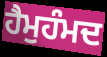
ਹੈਮੁਹੰਮਦ